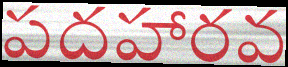
పదహారవ